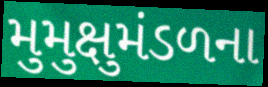
મુમુક્ષુમંડળના